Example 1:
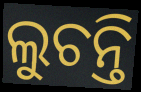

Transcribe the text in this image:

ଲୁଚନ୍ତି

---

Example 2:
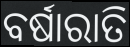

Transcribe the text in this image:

ବର୍ଷାରାତି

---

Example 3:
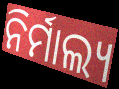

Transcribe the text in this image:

ନିର୍ମାଲ୍ୟ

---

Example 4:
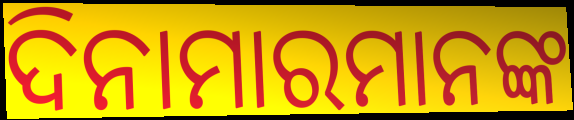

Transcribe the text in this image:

ଦିନାମାରମାନଙ୍କ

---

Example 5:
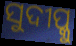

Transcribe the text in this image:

ସୁଦୀପ୍କୁ